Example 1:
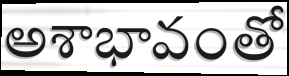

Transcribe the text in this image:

అశాభావంతో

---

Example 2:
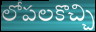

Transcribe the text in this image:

లోపలకొచ్చి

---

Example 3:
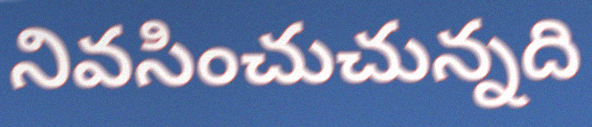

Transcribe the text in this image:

నివసించుచున్నది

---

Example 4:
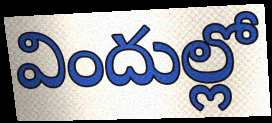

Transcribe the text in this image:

విందుల్లో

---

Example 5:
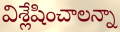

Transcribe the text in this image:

విశ్లేషించాలన్నా